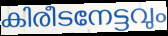
കിരീടനേട്ടവും